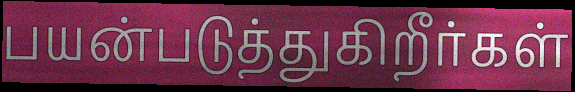
பயன்படுத்துகிறீர்கள்